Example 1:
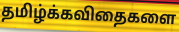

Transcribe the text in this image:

தமிழ்க்கவிதைகளை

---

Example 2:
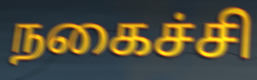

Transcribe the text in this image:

நகைச்சி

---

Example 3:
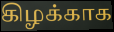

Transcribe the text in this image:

கிழக்காக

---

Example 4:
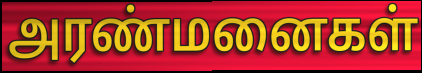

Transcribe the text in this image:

அரண்மனைகள்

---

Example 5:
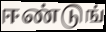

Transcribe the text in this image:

ஈண்டுங்